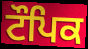
ਟੌਪਿਕ